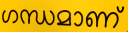
ഗന്ധമാണ്